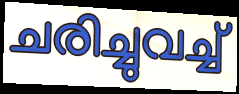
ചരിച്ചുവച്ച്